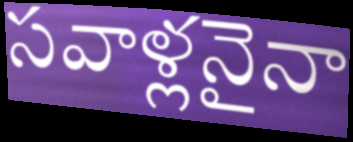
సవాళ్లనైనా